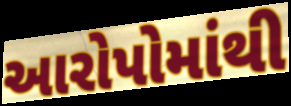
આરોપોમાંથી